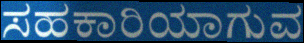
ಸಹಕಾರಿಯಾಗುವ